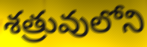
శత్రువులోని